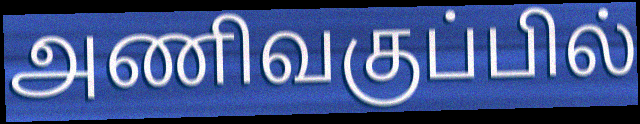
அணிவகுப்பில்